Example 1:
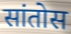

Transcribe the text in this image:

सांतोस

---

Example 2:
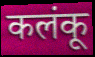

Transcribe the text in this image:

कलंकू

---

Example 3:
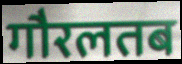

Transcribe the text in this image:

गौरलतब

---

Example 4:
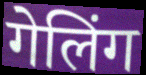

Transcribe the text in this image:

गेलिंग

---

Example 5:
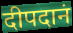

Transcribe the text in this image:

दीपदानं